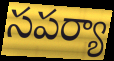
సపర్యా